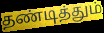
தண்டித்தும்